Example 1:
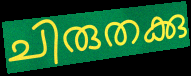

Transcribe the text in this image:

ചിരുതക്കു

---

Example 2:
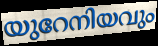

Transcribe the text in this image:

യുറേനിയവും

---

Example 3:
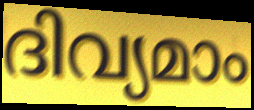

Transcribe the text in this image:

ദിവ്യമാം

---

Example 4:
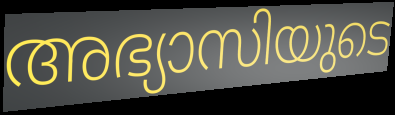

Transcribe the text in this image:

അഭ്യാസിയുടെ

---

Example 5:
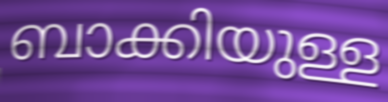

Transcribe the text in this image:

ബാക്കിയുള്ള